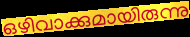
ഒഴിവാക്കുമായിരുന്നു